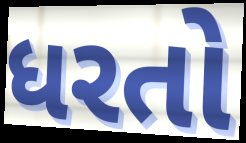
ધરતો